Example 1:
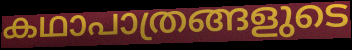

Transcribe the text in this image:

കഥാപാത്രങ്ങളുടെ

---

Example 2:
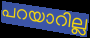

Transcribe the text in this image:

പറയാറില്ല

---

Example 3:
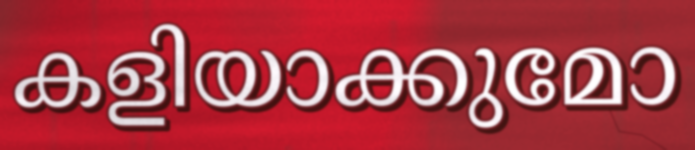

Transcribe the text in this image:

കളിയാക്കുമോ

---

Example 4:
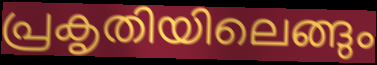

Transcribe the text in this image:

പ്രകൃതിയിലെങ്ങും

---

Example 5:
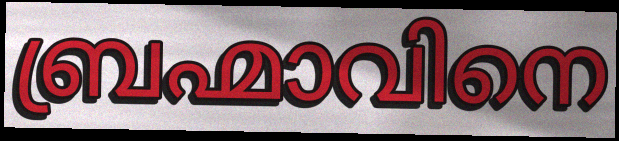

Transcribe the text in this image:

ബ്രഹ്മാവിനെ